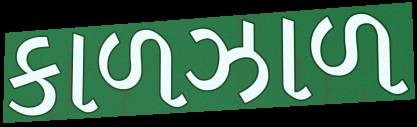
કાળઝાળ